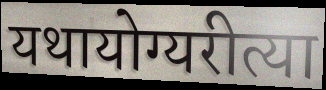
यथायोग्यरीत्या